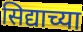
सिद्याच्या